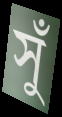
সুঁ